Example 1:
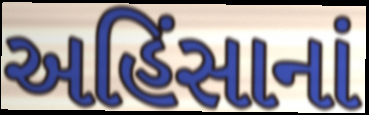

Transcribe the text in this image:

અહિંસાનાં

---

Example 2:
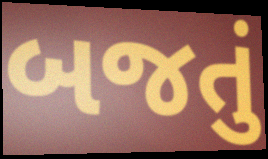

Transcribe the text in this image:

બજતું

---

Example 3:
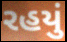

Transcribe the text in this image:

રહયું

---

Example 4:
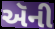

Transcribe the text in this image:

ઍની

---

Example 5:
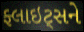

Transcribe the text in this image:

ફ્લાઇટ્સને